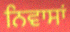
ਨਿਵਾਸਾਂ